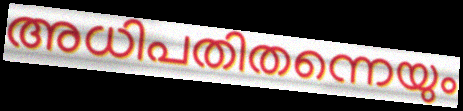
അധിപതിതന്നെയും